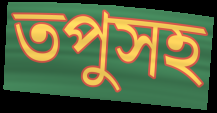
তপুসহ